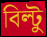
বিল্টু